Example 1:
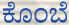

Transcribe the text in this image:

ಕೊಂಬೆ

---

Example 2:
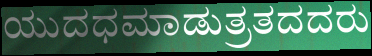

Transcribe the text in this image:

ಯುದಧಮಾಡುತ್ರತದದರು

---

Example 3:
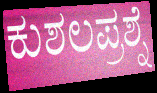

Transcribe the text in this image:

ಕುಶಲಪ್ರಶ್ನೆ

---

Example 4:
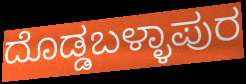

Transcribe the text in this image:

ದೊಡ್ಡಬಳ್ಳಾಪುರ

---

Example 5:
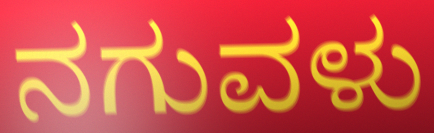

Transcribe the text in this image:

ನಗುವಳು